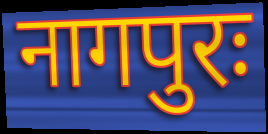
नागपुरः